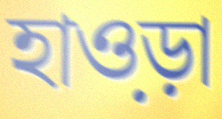
হাও়ড়া